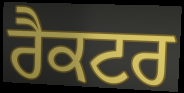
ਰੈਕਟਰ